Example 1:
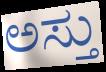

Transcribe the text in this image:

ಅಸ್ತು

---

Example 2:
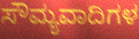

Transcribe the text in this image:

ಸೌಮ್ಯವಾದಿಗಳ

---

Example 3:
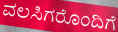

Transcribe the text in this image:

ವಲಸಿಗರೊಂದಿಗೆ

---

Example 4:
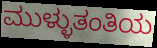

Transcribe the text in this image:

ಮುಳ್ಳುತಂತಿಯ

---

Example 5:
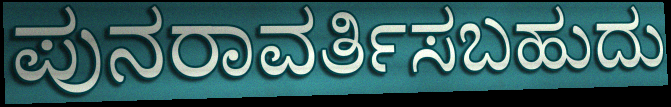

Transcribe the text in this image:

ಪುನರಾವರ್ತಿಸಬಹುದು